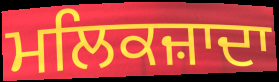
ਮਲਿਕਜ਼ਾਦਾ